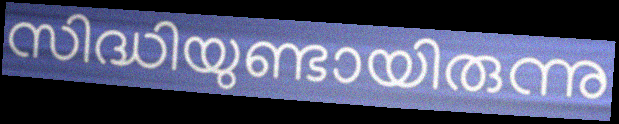
സിദ്ധിയുണ്ടായിരുന്നു